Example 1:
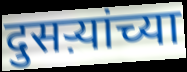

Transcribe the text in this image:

दुसऱ्‍यांच्या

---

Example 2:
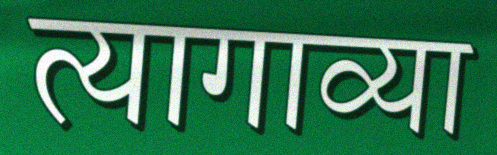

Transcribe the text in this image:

त्यागाव्या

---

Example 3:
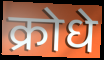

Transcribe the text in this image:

क्रोधे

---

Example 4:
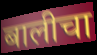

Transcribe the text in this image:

बालीचा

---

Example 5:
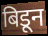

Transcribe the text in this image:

बिडून